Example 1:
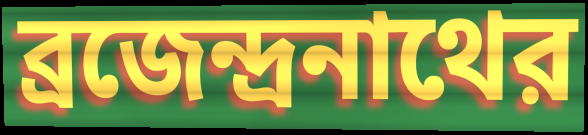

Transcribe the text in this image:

ব্রজেন্দ্রনাথের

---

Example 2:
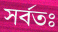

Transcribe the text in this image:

সর্বতঃ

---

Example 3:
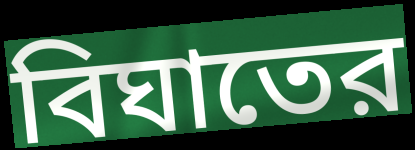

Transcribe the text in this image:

বিঘাতের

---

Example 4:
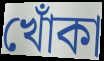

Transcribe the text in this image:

খোঁকা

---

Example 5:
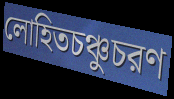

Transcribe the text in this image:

লোহিতচঞ্চুচরণ